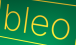
bleo